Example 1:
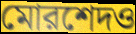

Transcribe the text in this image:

মোরশেদও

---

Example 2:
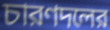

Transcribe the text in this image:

চারণদলের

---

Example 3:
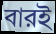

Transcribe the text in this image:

বারই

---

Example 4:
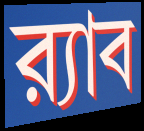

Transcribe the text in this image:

র‍্যাব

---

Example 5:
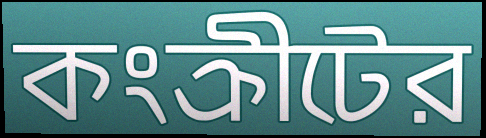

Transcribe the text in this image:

কংক্রীটের